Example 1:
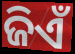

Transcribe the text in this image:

ଜିଏଁ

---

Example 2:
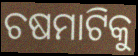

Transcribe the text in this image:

ଚଷମାଟିକୁ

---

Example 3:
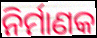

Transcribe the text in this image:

ନିର୍ମାଣକ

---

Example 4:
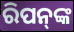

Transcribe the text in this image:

ରିପନ୍‍ଙ୍କ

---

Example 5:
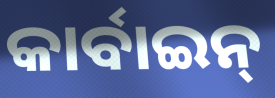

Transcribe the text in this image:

କାର୍ବାଇନ୍